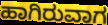
ಹಾಗಿರುವಾಗ